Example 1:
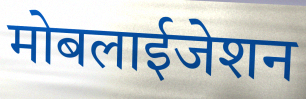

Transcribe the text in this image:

मोबलाईजेशन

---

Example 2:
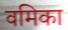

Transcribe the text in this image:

वमिका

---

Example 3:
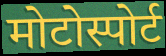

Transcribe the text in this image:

मोटोस्पोर्ट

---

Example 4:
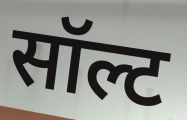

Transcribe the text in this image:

सॉल्ट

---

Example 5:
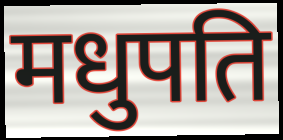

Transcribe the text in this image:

मधुपति